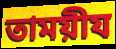
তাময়ীয